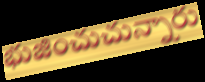
భుజించుచున్నారు